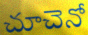
చూచెనో